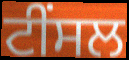
ਟੀਂਸਲ